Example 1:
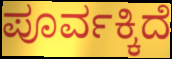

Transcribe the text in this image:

ಪೂರ್ವಕ್ಕಿದೆ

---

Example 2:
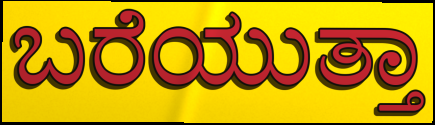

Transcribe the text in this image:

ಬರೆಯುತ್ತಾ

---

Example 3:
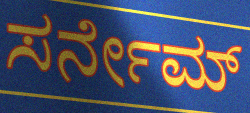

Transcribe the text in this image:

ಸರ್ನೇಮ್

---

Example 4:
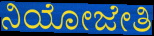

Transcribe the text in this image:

ನಿಯೋಜೇತಿ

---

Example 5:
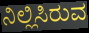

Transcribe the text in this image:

ನಿಲ್ಲಿಸಿರುವ